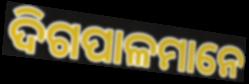
ଦିଗପାଳମାନେ